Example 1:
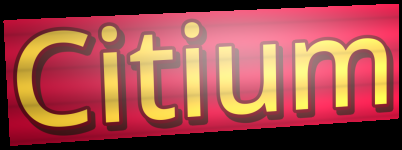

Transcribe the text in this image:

Citium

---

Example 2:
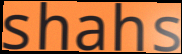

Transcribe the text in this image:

shahs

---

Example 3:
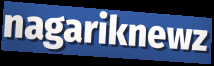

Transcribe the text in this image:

nagariknewz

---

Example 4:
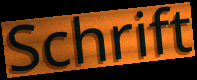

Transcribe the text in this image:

Schrift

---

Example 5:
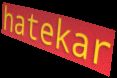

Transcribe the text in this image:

hatekar